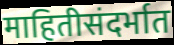
माहितीसंदर्भात